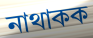
নাথাকক